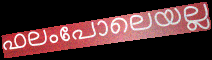
ഫലംപോലെയല്ല